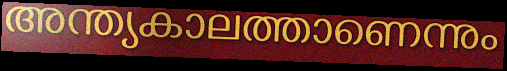
അന്ത്യകാലത്താണെന്നും